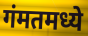
गंमतमध्ये